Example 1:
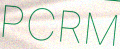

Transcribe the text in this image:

PCRM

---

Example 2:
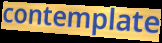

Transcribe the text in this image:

contemplate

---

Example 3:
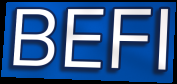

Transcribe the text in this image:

BEFI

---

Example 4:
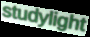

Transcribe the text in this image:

studylight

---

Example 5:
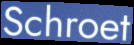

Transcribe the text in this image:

Schroet